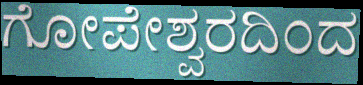
ಗೋಪೇಶ್ವರದಿಂದ